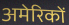
अमेरिकों